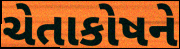
ચેતાકોષને